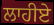
ਲਾਹੀਏ